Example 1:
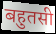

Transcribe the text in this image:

बहुतसी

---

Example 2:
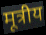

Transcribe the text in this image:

मूत्रीय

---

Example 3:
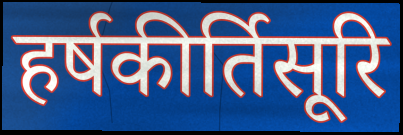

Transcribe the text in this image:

हर्षकीर्तिसूरि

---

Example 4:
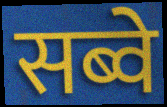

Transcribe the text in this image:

सब्वे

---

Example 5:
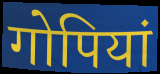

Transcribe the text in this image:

गोपियां